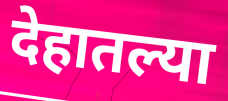
देहातल्या